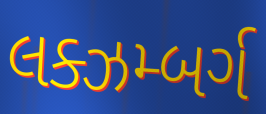
લક્ઝમ્બર્ગ